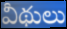
వీథులు